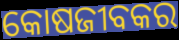
କୋଷଜୀବକର